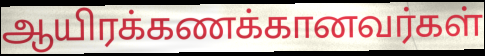
ஆயிரக்கணக்கானவர்கள்